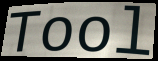
Tool